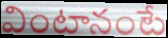
వింటానంటే